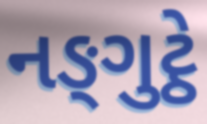
નઙ્ગુટ્ઠે